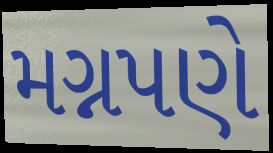
મગ્નપણે